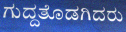
ಗುದ್ದತೊಡಗಿದರು